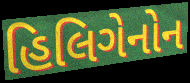
હિલિગેનોન